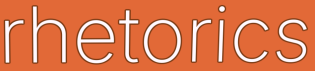
rhetorics